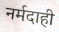
नर्मदाही